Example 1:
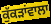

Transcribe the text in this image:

ਕੁੱਕੜਾਂਵਾਲਾ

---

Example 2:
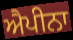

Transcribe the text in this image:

ਐਪੀਨਾ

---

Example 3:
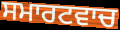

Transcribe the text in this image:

ਸਮਾਰਟਵਾਚ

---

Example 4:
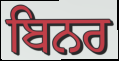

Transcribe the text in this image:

ਬਿਨਰ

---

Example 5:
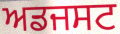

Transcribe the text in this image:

ਅਡਜਸਟ